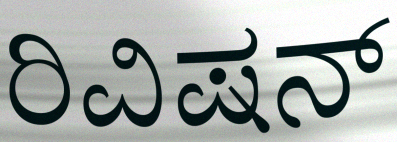
ರಿವಿಷನ್